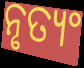
ନୃତ୍ୟଂ